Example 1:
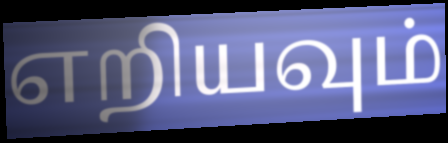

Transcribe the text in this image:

எறியவும்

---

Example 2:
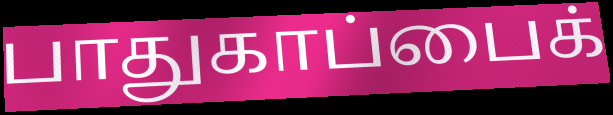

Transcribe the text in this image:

பாதுகாப்பைக்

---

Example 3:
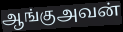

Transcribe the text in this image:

ஆங்குஅவன்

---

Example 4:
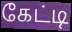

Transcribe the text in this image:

கேட்டி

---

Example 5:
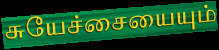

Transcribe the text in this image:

சுயேச்சையையும்